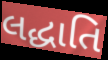
લદ્ધાતિ